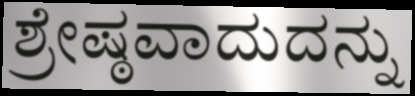
ಶ್ರೇಷ್ಠವಾದುದನ್ನು